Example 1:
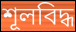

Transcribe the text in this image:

শূলবিদ্ধ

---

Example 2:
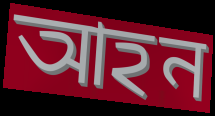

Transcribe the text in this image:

আহন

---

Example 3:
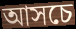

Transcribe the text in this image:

আসচে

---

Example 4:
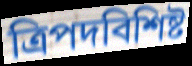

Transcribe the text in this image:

ত্রিপদবিশিষ্ট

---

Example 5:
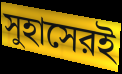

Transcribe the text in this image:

সুহাসেরই